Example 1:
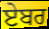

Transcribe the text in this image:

ਏਬਰ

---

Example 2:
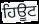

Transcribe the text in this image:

ਹਿਊਟ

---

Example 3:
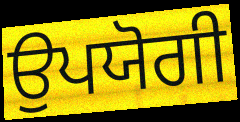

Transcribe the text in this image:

ਉਪਯੋਗੀ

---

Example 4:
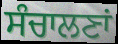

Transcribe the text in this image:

ਸੰਚਾਲਣਾਂ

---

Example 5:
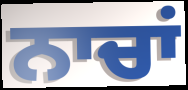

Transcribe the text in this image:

ਨਾਚਾਂ